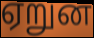
ஏறுன